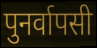
पुनर्वापसी